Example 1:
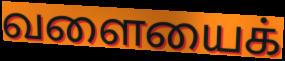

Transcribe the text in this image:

வளையைக்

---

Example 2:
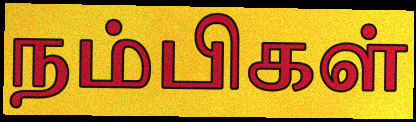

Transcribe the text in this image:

நம்பிகள்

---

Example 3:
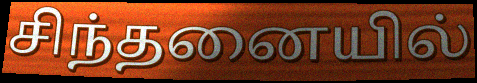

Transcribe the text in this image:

சிந்தனையில்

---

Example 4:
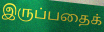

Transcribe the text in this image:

இருப்பதைக்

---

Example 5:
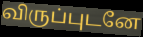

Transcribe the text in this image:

விருப்புடனே